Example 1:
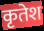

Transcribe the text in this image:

कृतेश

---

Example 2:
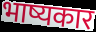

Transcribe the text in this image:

भाष्यकार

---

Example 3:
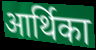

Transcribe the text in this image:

आर्थिका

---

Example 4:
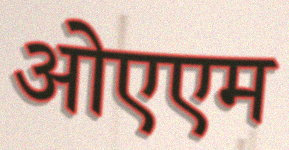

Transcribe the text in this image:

ओएएम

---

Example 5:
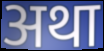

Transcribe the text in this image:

अथा